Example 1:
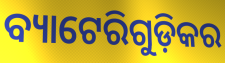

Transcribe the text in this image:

ବ୍ୟାଟେରିଗୁଡ଼ିକର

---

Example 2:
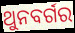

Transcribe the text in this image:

ଥୁନବର୍ଗର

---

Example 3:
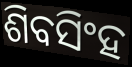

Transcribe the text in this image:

ଶିବସିଂହ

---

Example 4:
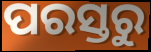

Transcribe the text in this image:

ପରସ୍ତରୁ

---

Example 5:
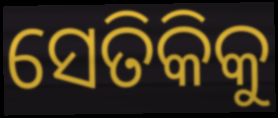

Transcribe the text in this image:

ସେତିକିକୁ